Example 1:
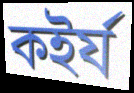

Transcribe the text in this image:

কইর্য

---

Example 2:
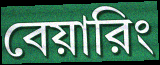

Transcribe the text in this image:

বেয়ারিং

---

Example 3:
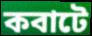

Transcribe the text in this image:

কবাটে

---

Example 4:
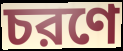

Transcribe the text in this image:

চরণে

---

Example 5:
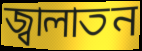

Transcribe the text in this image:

জ্বালাতন